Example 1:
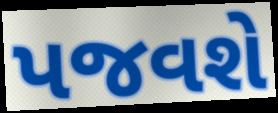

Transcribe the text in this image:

પજવશે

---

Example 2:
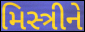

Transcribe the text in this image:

મિસ્ત્રીને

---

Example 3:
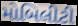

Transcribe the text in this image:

મોબિલીટી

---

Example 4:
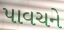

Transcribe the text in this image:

પાવચને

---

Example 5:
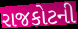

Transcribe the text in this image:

રાજકોટની